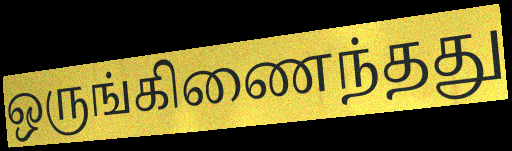
ஒருங்கிணைந்தது